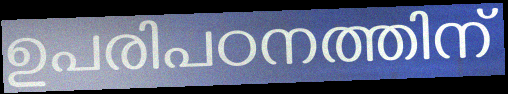
ഉപരിപഠനത്തിന്